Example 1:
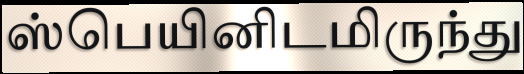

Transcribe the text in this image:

ஸ்பெயினிடமிருந்து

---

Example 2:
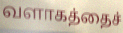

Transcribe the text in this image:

வளாகத்தைச்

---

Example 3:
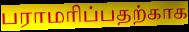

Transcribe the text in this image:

பராமரிப்பதற்காக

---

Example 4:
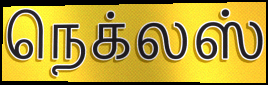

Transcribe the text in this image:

நெக்லஸ்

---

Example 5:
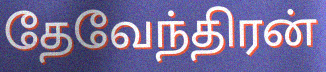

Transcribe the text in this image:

தேவேந்திரன்